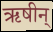
ऋषीन्